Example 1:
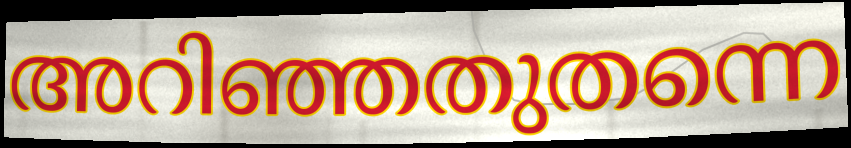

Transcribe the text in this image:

അറിഞ്ഞതുതന്നെ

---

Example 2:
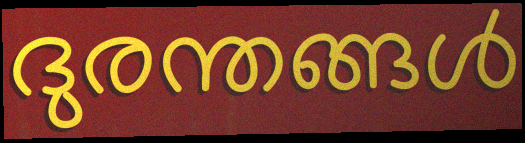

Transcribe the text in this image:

ദുരന്തങ്ങൾ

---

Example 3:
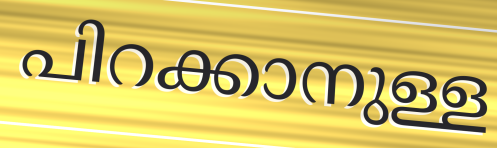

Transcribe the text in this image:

പിറക്കാനുള്ള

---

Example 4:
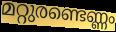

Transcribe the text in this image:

മറ്റുരണ്ടെണ്ണം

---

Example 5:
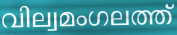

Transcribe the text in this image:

വില്വമംഗലത്ത്